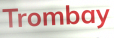
Trombay